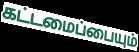
கட்டமைப்பையும்